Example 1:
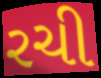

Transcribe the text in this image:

રચી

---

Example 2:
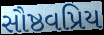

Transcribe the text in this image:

સૌષ્ઠવપ્રિય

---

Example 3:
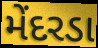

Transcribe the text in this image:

મેંદરડા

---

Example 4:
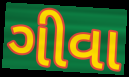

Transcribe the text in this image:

ગીવા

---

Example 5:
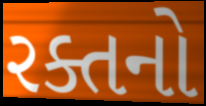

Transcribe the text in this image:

રક્તનો